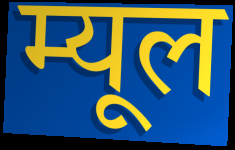
म्यूल